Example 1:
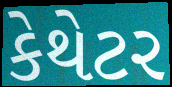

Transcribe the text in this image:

કેથેટર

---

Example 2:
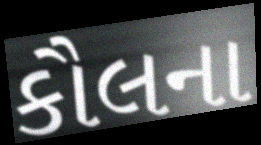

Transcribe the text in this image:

કૌલના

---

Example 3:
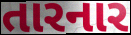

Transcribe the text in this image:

તારનાર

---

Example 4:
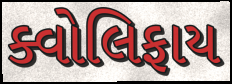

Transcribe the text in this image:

ક્વોલિફાય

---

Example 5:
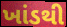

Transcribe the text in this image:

ખાંડથી